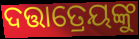
ଦତ୍ତାତ୍ରେୟଙ୍କୁ